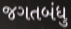
જગતબંધુ